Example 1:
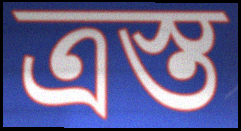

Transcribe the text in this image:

ত্রস্ত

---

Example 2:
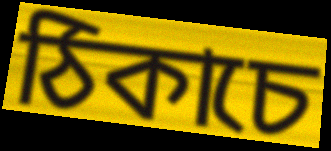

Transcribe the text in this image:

ঠিকাচে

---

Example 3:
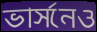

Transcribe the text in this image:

ভার্সনেও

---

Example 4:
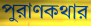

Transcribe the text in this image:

পুরাণকথার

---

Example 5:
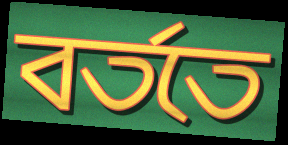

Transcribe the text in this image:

বর্ততে